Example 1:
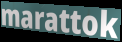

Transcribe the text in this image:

marattok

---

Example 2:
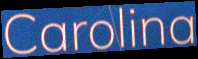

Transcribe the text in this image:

Carolina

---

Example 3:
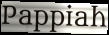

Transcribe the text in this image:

Pappiah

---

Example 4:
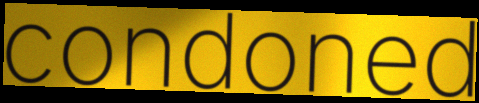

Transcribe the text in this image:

condoned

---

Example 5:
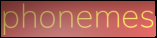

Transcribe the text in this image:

phonemes